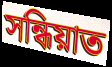
সন্ধিয়াত